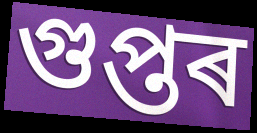
গুপ্তৰ